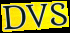
DVS